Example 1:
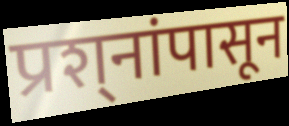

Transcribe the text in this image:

प्रश्नांपासून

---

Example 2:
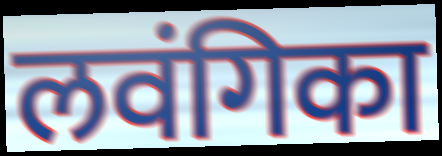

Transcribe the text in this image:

लवंगिका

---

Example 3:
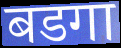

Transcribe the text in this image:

बडगा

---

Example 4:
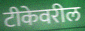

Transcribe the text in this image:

टीकेवरील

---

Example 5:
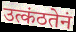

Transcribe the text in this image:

उत्कंठतेनं